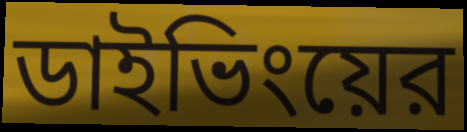
ডাইভিংয়ের